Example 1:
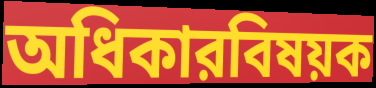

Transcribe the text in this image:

অধিকারবিষয়ক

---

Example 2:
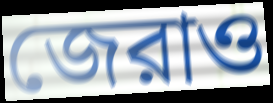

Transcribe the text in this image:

জেরাও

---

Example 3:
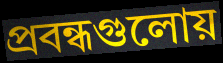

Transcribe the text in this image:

প্রবন্ধগুলোয়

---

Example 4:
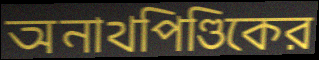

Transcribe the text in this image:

অনাথপিণ্ডিকের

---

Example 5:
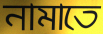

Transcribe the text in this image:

নামাতে